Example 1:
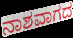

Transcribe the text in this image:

ನಾಶವಾಗದ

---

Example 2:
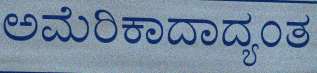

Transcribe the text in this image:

ಅಮೆರಿಕಾದಾದ್ಯಂತ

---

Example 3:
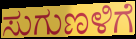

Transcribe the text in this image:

ಸುಗುಣಳಿಗೆ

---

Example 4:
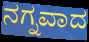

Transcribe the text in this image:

ನಗ್ನವಾದ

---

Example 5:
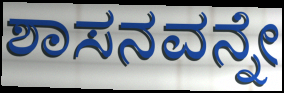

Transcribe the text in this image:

ಶಾಸನವನ್ನೇ